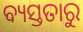
ବ୍ୟସ୍ତତାରୁ